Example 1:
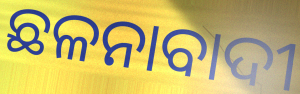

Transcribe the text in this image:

ଛଳନାବାଦୀ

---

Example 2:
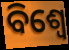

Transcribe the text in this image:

ବିଶ୍ଵେ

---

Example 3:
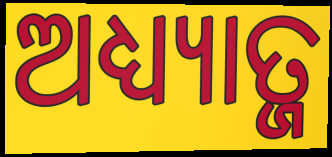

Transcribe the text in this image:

ଅଧ୍ୟ୍ୟାତ୍ଜ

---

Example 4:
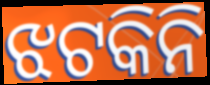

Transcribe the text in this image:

ଝଟକିନି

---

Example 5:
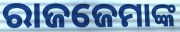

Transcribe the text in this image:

ରାଜଜେମାଙ୍କ